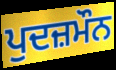
ਪੁਦਜ਼ਮੌਨ